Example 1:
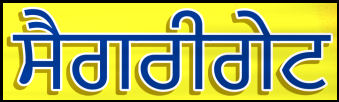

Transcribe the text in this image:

ਸੈਗਰੀਗੇਟ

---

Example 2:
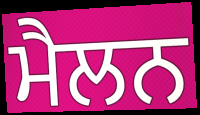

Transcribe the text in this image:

ਮੈਲਨ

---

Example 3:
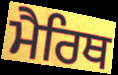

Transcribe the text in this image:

ਮੈਰਿਥ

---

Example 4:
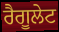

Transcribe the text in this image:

ਰੈਗੂਲੇਟ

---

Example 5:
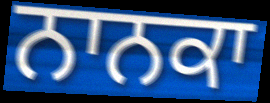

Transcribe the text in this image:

ਨਾਨਕਾ